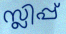
സ്ലിപ്പ്